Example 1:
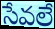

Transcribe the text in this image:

సేవలే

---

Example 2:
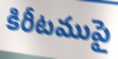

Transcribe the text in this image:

కిరీటముపై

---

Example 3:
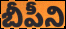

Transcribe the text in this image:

బీపీని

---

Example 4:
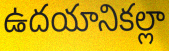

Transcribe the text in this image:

ఉదయానికల్లా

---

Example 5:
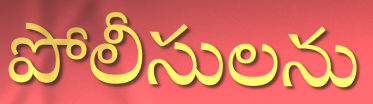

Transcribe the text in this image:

పోలీసులను